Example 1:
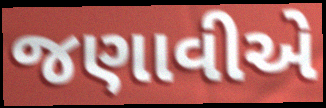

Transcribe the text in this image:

જણાવીએ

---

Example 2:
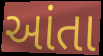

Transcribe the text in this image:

આંતા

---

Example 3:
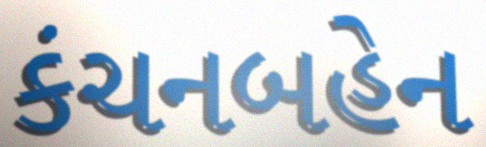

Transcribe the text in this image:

કંચનબહેન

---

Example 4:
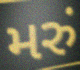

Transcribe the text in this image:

મરું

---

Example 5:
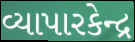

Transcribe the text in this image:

વ્યાપારકેન્દ્ર